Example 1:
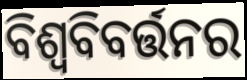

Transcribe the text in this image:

ବିଶ୍ଵବିବର୍ତ୍ତନର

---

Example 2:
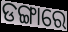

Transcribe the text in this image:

ଡଙ୍ଗାରେ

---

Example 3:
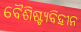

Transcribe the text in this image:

ବୈଶିଷ୍ଟ୍ୟବିହୀନ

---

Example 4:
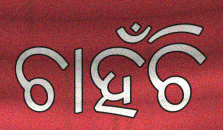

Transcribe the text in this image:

ଚାହଁଚି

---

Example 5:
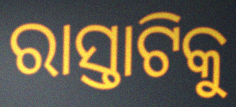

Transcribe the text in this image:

ରାସ୍ତାଟିକୁ